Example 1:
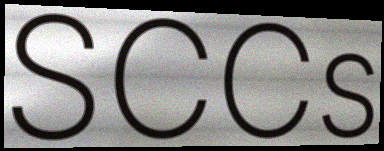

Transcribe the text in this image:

SCCs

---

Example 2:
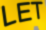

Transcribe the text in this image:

LET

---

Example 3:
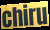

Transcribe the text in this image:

chiru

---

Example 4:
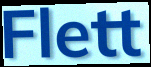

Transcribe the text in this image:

Flett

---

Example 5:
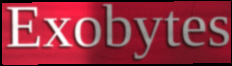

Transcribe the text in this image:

Exobytes